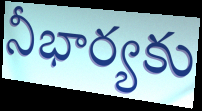
నీభార్యకు